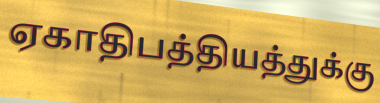
ஏகாதிபத்தியத்துக்கு